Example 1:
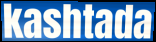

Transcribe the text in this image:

kashtada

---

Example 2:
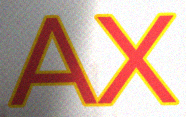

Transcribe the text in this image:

AX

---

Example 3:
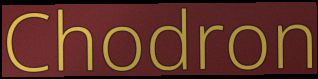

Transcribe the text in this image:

Chodron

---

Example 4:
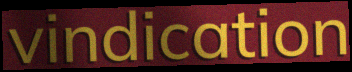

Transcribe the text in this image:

vindication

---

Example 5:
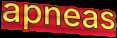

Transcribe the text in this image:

apneas